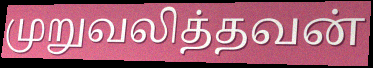
முறுவலித்தவன்